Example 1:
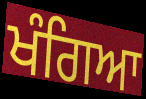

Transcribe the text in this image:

ਖੰਗਿਆ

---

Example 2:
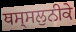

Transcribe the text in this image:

ਥਸ੍ਸਲੁਨੀਕੇ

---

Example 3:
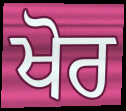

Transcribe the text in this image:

ਖੋਰ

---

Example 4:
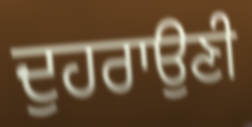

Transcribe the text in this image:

ਦੁਹਰਾਉਣੀ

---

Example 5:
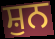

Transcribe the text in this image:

ਸ਼ੁਨ